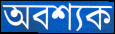
অবশ্যক